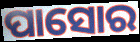
ପାସୋର